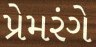
પ્રેમરંગે